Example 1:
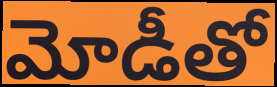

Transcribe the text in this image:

మోడీతో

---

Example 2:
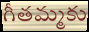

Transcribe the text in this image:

గీతమ్మకు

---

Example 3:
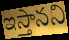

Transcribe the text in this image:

ఇస్తానని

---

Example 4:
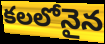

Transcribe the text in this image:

కలలోనైన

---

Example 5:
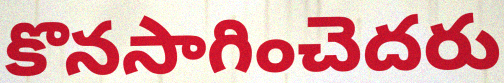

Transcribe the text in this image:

కొనసాగించెదరు